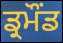
ਡ੍ਰਮੌਂਡ